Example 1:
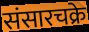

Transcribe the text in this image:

संसारचक्रे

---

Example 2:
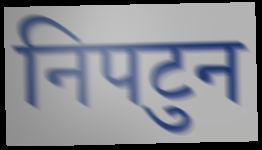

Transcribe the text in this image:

निपटुन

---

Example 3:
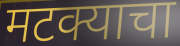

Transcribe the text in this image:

मटक्याचा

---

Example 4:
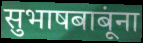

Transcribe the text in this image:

सुभाषबाबूंना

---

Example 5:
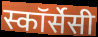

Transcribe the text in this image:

स्कॉर्सेसी